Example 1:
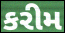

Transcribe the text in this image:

કરીમ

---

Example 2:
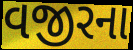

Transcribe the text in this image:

વજીરના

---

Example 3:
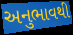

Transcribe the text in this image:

અનુભાવથી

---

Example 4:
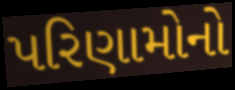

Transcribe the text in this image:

પરિણામોનો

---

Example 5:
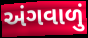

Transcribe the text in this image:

અંગવાળું